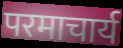
परमाचार्य